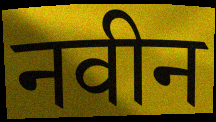
नवीन